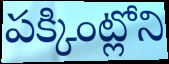
పక్కింట్లోని